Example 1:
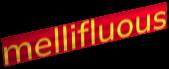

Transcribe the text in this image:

mellifluous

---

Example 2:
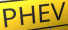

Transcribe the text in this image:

PHEV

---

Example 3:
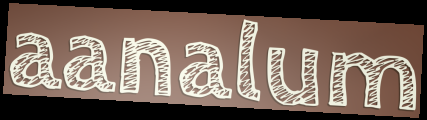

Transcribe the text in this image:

aanalum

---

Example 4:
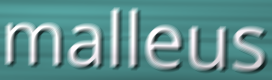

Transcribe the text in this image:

malleus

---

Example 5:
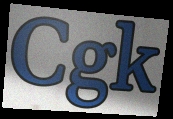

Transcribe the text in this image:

Cgk